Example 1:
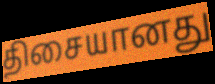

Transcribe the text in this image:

திசையானது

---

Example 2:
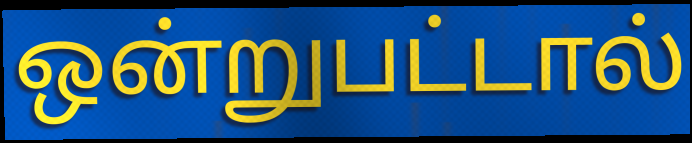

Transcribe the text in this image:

ஒன்றுபட்டால்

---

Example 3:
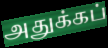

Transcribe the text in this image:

அதுக்கப்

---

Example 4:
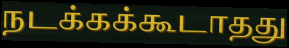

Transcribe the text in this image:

நடக்கக்கூடாதது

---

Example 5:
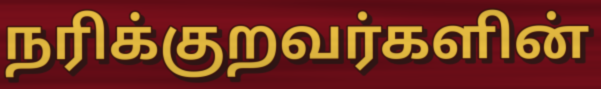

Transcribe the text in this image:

நரிக்குறவர்களின்